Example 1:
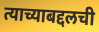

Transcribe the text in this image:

त्याच्याबद्दलची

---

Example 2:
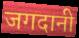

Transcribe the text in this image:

जगदानी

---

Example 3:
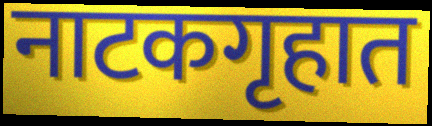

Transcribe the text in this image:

नाटकगृहात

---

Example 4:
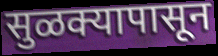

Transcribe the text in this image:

सुळक्यापासून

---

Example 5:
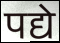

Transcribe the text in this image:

पद्ये